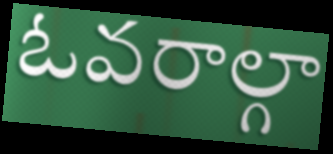
ఓవరాల్గా